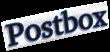
Postbox